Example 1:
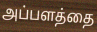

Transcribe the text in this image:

அப்பளத்தை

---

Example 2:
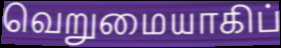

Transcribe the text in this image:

வெறுமையாகிப்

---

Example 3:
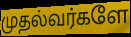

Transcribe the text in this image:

முதல்வர்களே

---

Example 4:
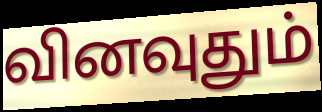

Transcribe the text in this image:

வினவுதும்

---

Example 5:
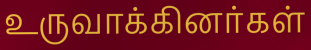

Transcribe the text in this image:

உருவாக்கினர்கள்